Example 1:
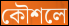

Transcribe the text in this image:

কৌশলে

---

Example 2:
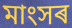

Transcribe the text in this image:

মাংসৰ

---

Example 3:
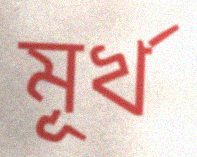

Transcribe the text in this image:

মূৰ্খ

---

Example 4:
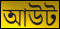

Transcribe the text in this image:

আউট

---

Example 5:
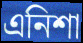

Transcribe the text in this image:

এনিশা